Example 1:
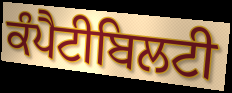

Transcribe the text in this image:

ਕੰਪੈਟੀਬਿਲਟੀ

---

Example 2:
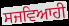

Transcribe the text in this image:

ਸਜਵਿਆਹੀ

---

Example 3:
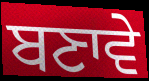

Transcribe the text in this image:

ਬਣਾਵੇ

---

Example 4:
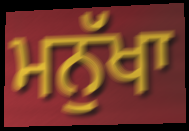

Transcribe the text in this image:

ਮਨੁੱਖਾ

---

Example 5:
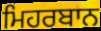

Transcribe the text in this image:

ਮਿਹਰਬਾਨ